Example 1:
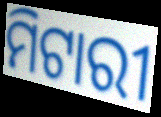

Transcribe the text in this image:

ମିଟାରୀ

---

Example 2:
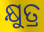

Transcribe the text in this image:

କ୍ଷୁତ୍ର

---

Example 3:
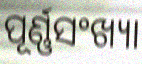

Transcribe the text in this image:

ପୂର୍ଣ୍ଣସଂଖ୍ୟା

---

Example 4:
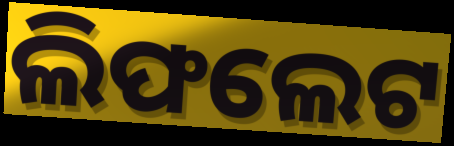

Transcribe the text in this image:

ଲିଫଲେଟ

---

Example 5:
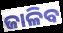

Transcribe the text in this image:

ଜାଳିବ